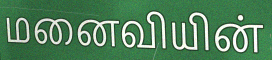
மனைவியின்